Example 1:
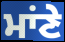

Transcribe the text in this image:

ਮਾਂਣੇ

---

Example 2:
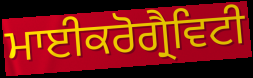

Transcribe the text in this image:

ਮਾਈਕਰੋਗ੍ਰੈਵਿਟੀ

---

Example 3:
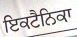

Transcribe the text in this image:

ਇਕਟੈਨਿਕਾ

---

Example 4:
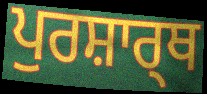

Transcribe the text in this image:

ਪੁਰਸ਼ਾਰ੍ਥ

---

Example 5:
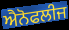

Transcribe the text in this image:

ਐਨੋਫਲੀਜ